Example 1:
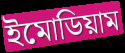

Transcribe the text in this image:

ইমোডিয়াম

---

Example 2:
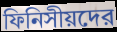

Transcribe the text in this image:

ফিনিসীয়দের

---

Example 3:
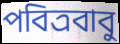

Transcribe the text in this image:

পবিত্রবাবু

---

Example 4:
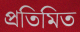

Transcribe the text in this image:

প্রতিমিত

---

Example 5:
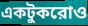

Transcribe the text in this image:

একটুকরোও